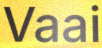
Vaai